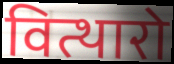
वित्थारो